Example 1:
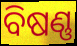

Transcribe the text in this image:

ବିଷଣ୍ଣ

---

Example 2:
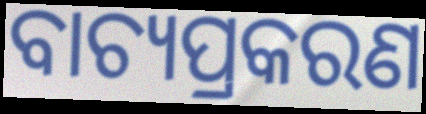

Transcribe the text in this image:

ବାଚ୍ୟପ୍ରକରଣ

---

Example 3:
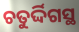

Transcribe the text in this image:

ଚତୁର୍ଦ୍ଦିଗସ୍ଥ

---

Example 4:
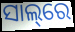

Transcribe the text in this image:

ସାଲ୍‌ରେ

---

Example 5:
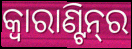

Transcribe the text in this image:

କ୍ବାରାଣ୍ଟିନ୍‌ର